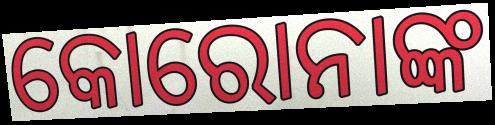
କୋରୋନାଙ୍କ